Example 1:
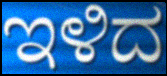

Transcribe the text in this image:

ಇಳಿದ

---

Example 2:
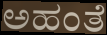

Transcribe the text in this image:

ಅಹಂತೆ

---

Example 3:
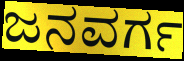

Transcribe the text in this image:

ಜನವರ್ಗ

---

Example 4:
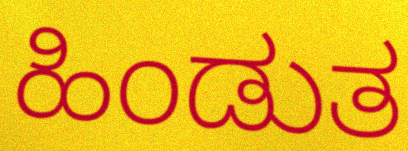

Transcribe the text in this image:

ಹಿಂಡುತ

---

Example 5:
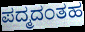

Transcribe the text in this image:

ಪದ್ಮದಂತಹ